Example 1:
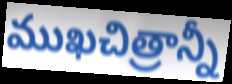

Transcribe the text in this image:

ముఖచిత్రాన్నీ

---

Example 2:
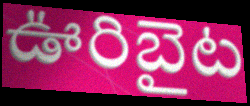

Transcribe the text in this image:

ఊరిబైట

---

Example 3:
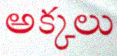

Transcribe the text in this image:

అక్కలు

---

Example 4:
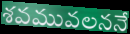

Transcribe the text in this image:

శవమువలననే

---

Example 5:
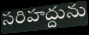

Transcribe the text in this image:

సరిహద్దును